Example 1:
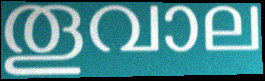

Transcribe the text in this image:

തൂവാല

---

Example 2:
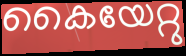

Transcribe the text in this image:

കൈയേറ്റു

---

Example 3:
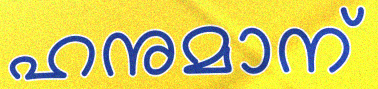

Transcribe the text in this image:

ഹനുമാന്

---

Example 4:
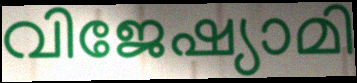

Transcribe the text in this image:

വിജേഷ്യാമി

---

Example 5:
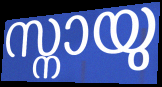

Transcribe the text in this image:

സ്നായു